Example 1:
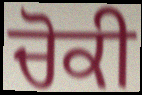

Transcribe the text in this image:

ਚੋਕੀ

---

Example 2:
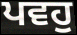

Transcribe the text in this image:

ਪਵਹੁ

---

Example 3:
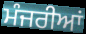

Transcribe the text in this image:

ਮੰਜਰੀਆਂ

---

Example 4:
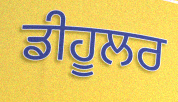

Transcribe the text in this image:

ਡੀਹੂਲਰ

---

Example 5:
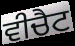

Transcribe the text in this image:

ਵੀਚੈਟ